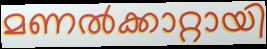
മണൽക്കാറ്റായി